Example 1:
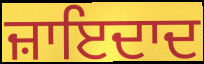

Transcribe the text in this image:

ਜ਼ਾਇਦਾਦ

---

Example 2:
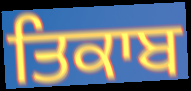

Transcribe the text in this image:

ਤਿਕਾਬ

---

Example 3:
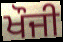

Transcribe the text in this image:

ਖੌਜੀ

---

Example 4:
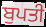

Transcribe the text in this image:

ਬੁਪਤੀ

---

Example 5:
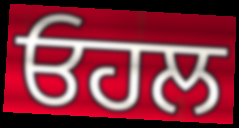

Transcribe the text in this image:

ਓਹਲ